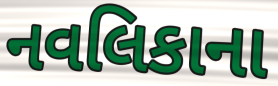
નવલિકાના